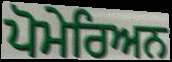
ਪੋਮੇਰਿਅਨ